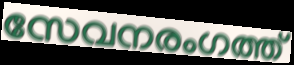
സേവനരംഗത്ത്